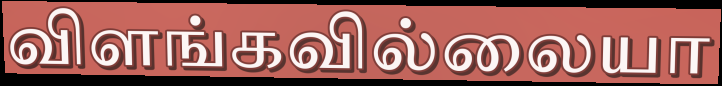
விளங்கவில்லையா